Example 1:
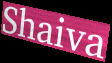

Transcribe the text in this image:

Shaiva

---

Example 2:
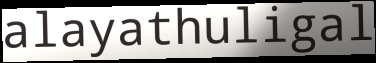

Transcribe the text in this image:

alayathuligal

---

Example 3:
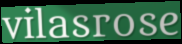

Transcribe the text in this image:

vilasrose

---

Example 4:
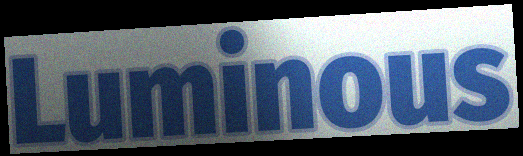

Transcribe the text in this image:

Luminous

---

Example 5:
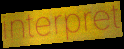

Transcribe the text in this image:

interpret